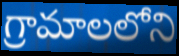
గ్రామాలలోని